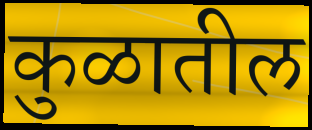
कुळातील